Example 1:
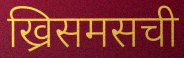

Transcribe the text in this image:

ख्रिसमसची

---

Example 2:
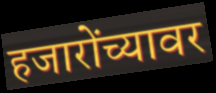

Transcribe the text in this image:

हजारोंच्यावर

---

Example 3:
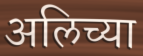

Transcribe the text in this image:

अलिच्या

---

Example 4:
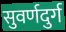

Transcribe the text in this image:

सुवर्णदुर्ग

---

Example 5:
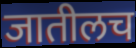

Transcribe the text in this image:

जातीलच